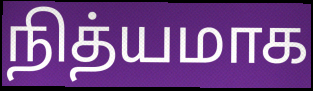
நித்யமாக